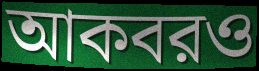
আকবরও